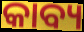
କାବ୍ୟ